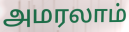
அமரலாம்